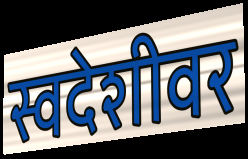
स्वदेशीवर